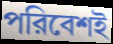
পরিবেশই